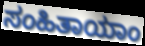
ಸಂಹಿತಾಯಾಂ